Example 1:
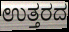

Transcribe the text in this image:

ಉತ್ತರದ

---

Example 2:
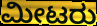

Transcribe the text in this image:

ಮೀಟರು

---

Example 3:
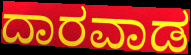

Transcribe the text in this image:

ದಾರವಾಡ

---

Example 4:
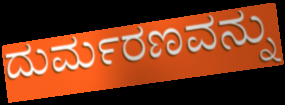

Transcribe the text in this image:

ದುರ್ಮರಣವನ್ನು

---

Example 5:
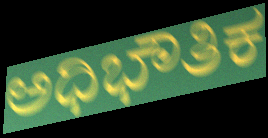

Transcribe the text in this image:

ಅಧಿಭೌತಿಕ